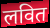
लवित